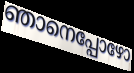
ഞാനെപ്പോഴോ